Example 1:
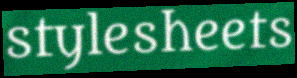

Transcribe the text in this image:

stylesheets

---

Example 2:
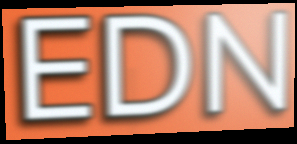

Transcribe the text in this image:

EDN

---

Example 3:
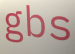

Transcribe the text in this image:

gbs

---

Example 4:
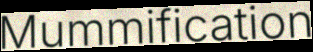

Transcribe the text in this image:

Mummification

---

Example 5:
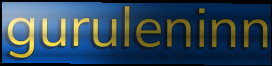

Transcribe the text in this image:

guruleninn